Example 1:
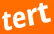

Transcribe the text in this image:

tert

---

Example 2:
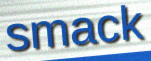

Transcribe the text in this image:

smack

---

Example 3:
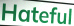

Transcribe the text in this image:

Hateful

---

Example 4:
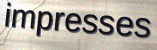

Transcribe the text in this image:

impresses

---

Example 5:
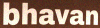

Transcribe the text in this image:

bhavan